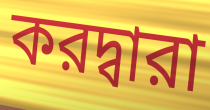
করদ্বারা